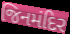
જિનમંદિર